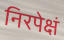
निरपेक्षं